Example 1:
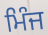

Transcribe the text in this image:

ਮਿੰਜ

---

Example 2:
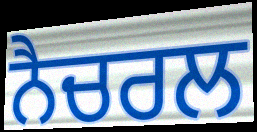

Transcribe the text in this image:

ਨੈਚਰਲ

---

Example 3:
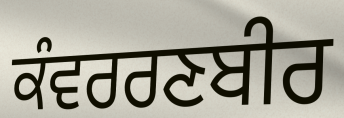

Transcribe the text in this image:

ਕੰਵਰਰਣਬੀਰ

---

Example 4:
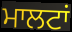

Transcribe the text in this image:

ਮਾਲਟਾਂ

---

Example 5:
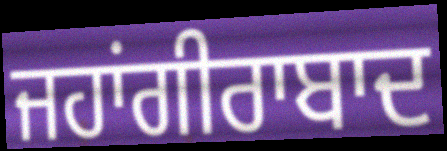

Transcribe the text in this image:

ਜਹਾਂਗੀਰਾਬਾਦ